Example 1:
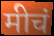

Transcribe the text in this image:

मीचं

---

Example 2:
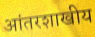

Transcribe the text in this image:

आंतरशाखीय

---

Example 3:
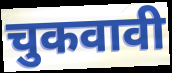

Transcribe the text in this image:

चुकवावी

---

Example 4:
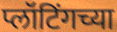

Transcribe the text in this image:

प्लॉटिंगच्या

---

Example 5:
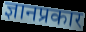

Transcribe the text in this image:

ज्ञानप्रकार